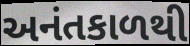
અનંતકાળથી